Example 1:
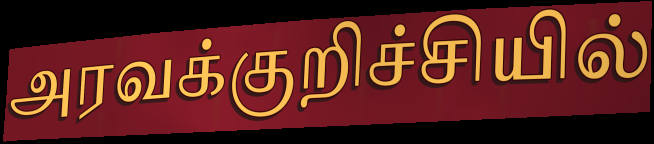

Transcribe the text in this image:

அரவக்குறிச்சியில்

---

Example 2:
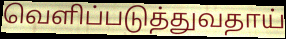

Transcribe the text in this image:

வெளிப்படுத்துவதாய்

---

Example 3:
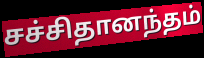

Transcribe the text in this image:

சச்சிதானந்தம்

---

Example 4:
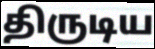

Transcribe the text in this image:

திருடிய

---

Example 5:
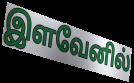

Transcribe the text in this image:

இளவேனில்